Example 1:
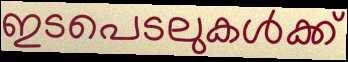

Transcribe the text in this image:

ഇടപെടലുകൾക്ക്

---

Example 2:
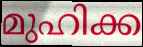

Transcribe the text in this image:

മുഹിക്ക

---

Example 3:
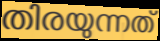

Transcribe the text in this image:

തിരയുന്നത്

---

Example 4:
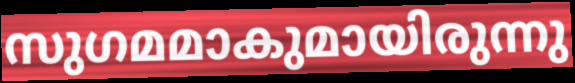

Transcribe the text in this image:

സുഗമമാകുമായിരുന്നു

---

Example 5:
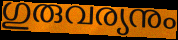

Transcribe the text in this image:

ഗുരുവര്യനും